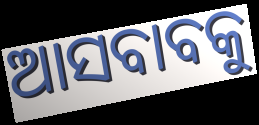
ଆସବାବକୁ